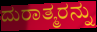
ದುರಾತ್ಮರನ್ನು